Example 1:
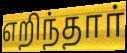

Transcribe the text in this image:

எறிந்தார்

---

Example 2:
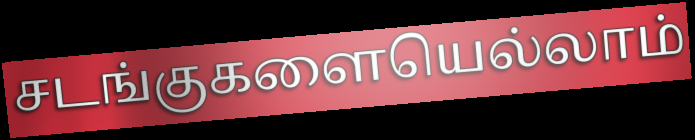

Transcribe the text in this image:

சடங்குகளையெல்லாம்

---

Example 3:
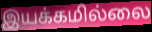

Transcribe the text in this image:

இயக்கமில்லை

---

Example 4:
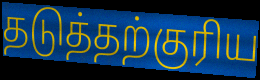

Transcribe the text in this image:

தடுத்தற்குரிய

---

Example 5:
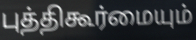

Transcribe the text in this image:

புத்திகூர்மையும்